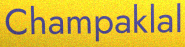
Champaklal